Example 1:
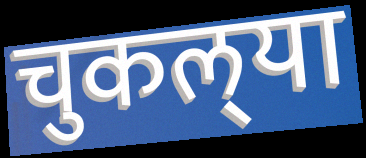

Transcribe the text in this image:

चुकल्या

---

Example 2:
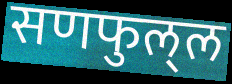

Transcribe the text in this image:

सणफुल्ल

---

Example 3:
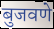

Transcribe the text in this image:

बुजवणे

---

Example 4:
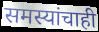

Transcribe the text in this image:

समस्यांचाही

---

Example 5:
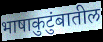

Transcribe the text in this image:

भाषाकुटुंबातील